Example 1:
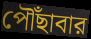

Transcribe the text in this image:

পৌঁছাবার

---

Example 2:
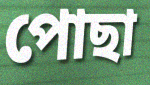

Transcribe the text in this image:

পোছা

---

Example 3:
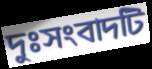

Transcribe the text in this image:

দুঃসংবাদটি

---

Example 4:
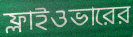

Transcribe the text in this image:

ফ্লাইওভারের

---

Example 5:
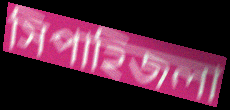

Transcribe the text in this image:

সিপাহিজলা